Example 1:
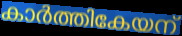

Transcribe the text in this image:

കാർത്തികേയന്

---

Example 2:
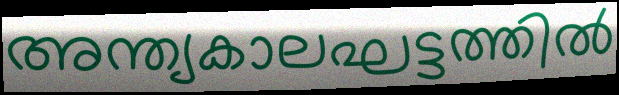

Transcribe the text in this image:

അന്ത്യകാലഘട്ടത്തിൽ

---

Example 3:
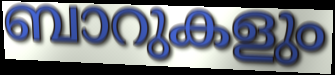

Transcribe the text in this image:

ബാറുകളും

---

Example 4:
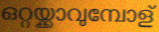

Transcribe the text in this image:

ഒറ്റയ്ക്കാവുമ്പോള്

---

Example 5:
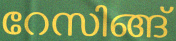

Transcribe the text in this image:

റേസിങ്ങ്